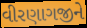
વીરણાગજીને